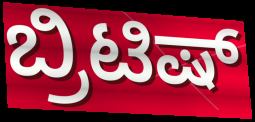
ಬ್ರಿಟಿಷ್